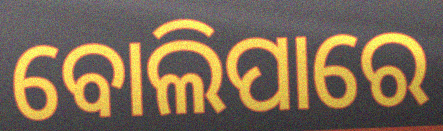
ବୋଲିପାରେ